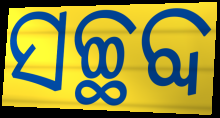
ସଚ୍ଛବ୍ଦ